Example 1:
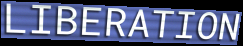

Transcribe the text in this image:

LIBERATION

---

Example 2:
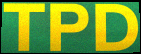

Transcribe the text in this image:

TPD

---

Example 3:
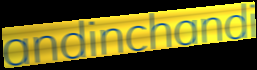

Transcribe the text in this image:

andinchandi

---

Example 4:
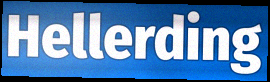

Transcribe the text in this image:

Hellerding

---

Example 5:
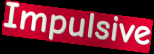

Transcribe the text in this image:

Impulsive